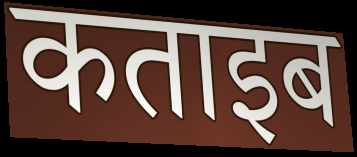
कताइब